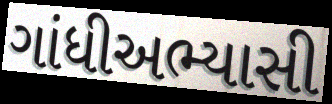
ગાંધીઅભ્યાસી